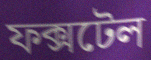
ফক্সটেল